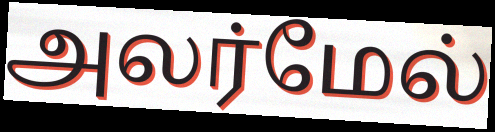
அலர்மேல்